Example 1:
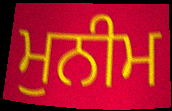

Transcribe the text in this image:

ਮੁਨੀਮ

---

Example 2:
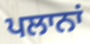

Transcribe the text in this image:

ਪਲਾਨਾਂ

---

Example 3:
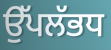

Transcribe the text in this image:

ਉੱਪਲੱਭਧ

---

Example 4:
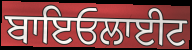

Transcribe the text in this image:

ਬਾਇਓਲਾਈਟ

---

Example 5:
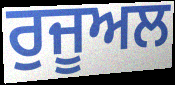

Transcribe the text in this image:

ਰੁਜੂਅਲ